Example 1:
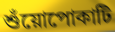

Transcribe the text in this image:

শুঁয়োপোকাটি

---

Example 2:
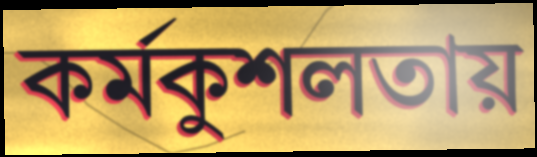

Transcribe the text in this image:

কর্মকুশলতায়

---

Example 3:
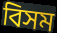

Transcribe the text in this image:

বিসম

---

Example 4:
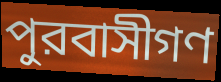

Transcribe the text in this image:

পুরবাসীগণ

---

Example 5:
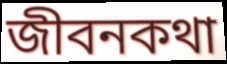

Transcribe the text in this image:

জীবনকথা